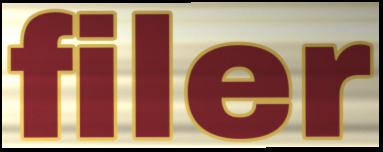
filer